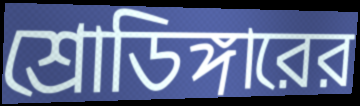
শ্রোডিঙ্গারের